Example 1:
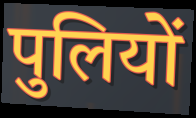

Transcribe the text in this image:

पुलियों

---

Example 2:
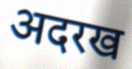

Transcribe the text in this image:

अदरख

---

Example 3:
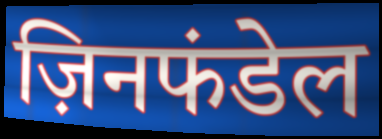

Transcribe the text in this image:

ज़िनफंडेल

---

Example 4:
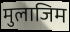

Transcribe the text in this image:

मुलाजिम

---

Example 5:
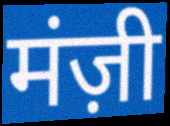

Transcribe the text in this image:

मंज़ी